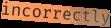
incorrectly